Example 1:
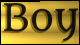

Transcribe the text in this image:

Boy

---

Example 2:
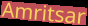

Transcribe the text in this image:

Amritsar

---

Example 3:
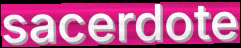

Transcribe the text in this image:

sacerdote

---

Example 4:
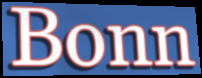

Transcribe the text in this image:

Bonn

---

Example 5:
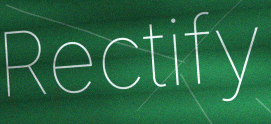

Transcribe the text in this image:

Rectify